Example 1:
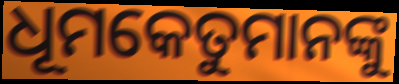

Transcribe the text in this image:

ଧୂମକେତୁମାନଙ୍କୁ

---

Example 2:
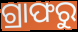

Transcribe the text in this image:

ଗ୍ରାଫରୁ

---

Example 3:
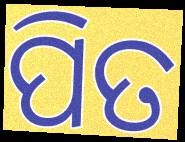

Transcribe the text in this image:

ପିତ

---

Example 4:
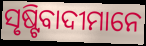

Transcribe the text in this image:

ସୃଷ୍ଟିବାଦୀମାନେ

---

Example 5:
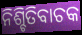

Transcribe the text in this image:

ନିଶ୍ଚିତିବାଚକ